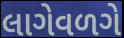
લાગેવળગે